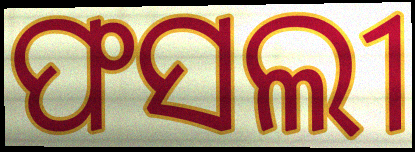
ଫସଲୀ